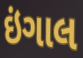
ઇંગાલ